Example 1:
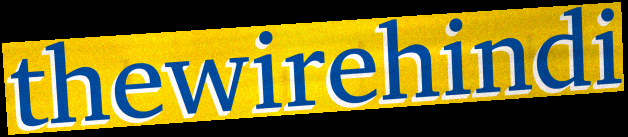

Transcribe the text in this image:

thewirehindi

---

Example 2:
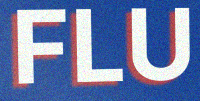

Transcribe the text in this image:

FLU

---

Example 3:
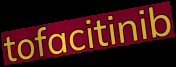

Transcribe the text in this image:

tofacitinib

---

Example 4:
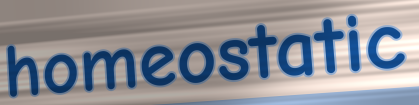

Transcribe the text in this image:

homeostatic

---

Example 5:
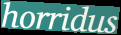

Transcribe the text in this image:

horridus